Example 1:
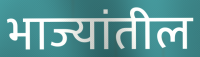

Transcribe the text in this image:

भाज्यांतील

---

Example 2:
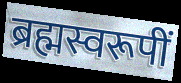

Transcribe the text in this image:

ब्रह्मस्वरूपीं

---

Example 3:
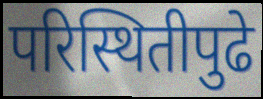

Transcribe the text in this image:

परिस्थितीपुढे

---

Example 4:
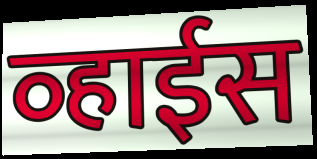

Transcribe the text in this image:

व्हाईस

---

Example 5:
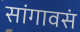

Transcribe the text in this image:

सांगावसं